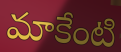
మాకేంటి